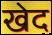
खेद